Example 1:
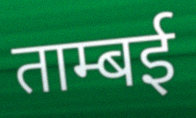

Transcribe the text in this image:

ताम्बई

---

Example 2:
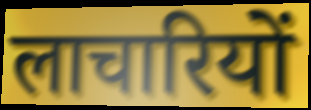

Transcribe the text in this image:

लाचारियों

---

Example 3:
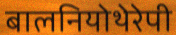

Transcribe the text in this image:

बालनियोथेरेपी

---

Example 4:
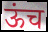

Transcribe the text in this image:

ऊंच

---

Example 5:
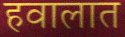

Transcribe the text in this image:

हवालात